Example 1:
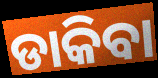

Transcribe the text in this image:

ଡାକିବା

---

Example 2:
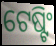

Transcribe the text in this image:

ଟେଷ୍ଟିଂ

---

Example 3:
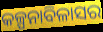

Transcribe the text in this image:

କଳ୍ପନାବିଳାସର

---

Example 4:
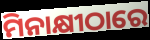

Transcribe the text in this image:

ମିନାକ୍ଷୀଠାରେ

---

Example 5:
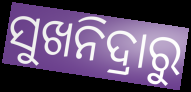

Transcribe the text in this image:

ସୁଖନିଦ୍ରାରୁ